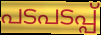
പടപടപ്പ്